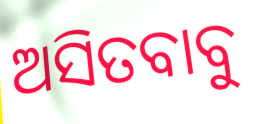
ଅସିତବାବୁ